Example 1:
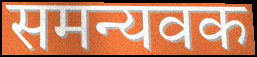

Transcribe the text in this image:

समन्यवक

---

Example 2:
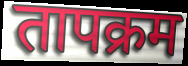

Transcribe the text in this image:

तापक्रम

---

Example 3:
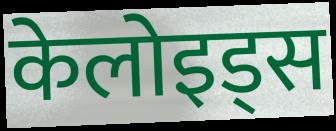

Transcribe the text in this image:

केलोइड्स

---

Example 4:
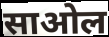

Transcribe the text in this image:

साओल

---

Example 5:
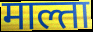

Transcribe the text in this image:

माल्ता